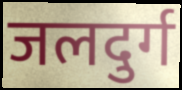
जलदुर्ग